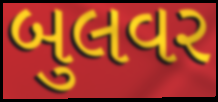
બુલવર